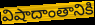
విషాదాంతానికి